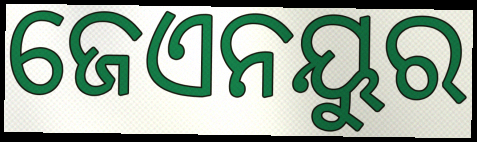
ଜେଏନୟୁର